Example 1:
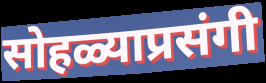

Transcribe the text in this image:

सोहळ्याप्रसंगी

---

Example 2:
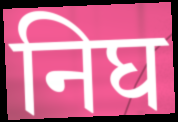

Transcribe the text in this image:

निघ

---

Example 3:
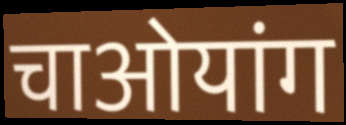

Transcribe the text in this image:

चाओयांग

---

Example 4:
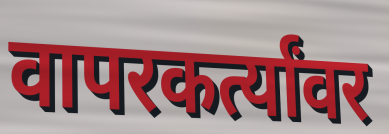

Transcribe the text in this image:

वापरकर्त्यांवर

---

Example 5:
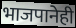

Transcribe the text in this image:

भाजपानेही